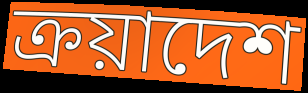
ক্রয়াদেশ